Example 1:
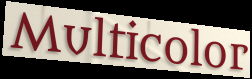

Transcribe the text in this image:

Multicolor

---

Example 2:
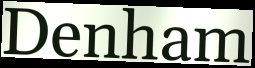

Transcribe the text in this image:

Denham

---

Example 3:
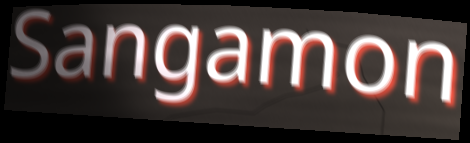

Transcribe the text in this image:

Sangamon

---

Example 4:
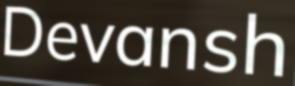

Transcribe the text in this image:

Devansh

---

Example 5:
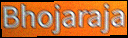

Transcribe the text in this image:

Bhojaraja